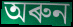
অৰুন